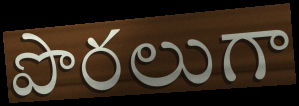
పొరలుగా